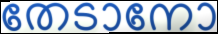
തേടാനോ